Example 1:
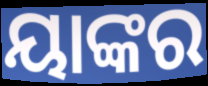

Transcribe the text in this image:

ୟାଙ୍କର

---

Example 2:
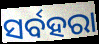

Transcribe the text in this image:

ସର୍ବହରା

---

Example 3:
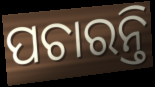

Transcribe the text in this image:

ପଚାରନ୍ତି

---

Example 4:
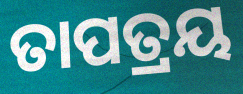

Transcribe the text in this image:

ତାପତ୍ରୟ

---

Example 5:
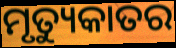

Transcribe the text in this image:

ମୃତ୍ୟୁକାତର